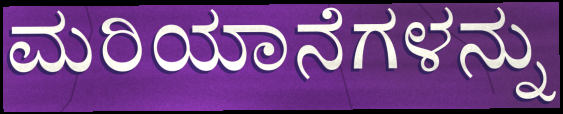
ಮರಿಯಾನೆಗಳನ್ನು